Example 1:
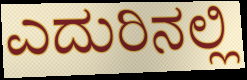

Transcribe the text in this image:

ಎದುರಿನಲ್ಲಿ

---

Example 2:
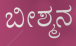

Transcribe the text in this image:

ಬೀಶ್ಮನ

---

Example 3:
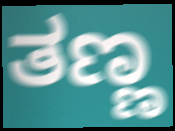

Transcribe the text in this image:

ತಣ್ಣ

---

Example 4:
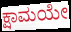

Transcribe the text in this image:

ಕ್ಷಾಮಯೇ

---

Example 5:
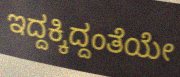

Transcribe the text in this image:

ಇದ್ದಕ್ಕಿದ್ದಂತೆಯೇ